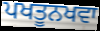
ਪਖਤੂਨਖਵਾ